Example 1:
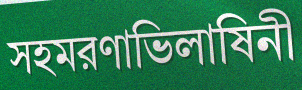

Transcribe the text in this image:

সহমরণাভিলাষিনী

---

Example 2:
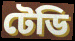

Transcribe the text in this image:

টেডি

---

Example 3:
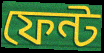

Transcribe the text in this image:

ফেন্ট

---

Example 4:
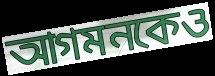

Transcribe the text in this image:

আগমনকেও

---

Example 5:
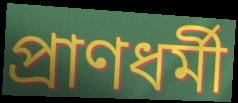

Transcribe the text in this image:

প্রাণধর্মী